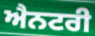
ਐਨਟਰੀ